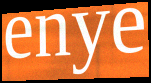
enye